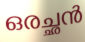
ഒരച്ഛൻ